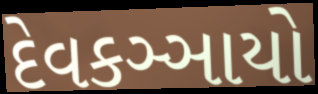
દેવકઞ્ઞાયો